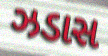
ઝડાસ